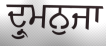
ਦ੍ਰੁਮਨੁਜਾ